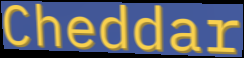
Cheddar